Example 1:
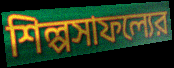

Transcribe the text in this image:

শিল্পসাফল্যের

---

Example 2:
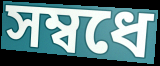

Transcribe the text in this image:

সম্বধে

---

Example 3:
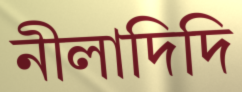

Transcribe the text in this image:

নীলাদিদি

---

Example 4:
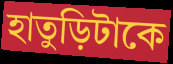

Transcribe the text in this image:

হাতুড়িটাকে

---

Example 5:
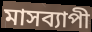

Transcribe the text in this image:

মাসব্যাপী